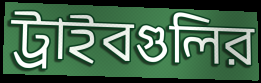
ট্রাইবগুলির